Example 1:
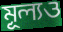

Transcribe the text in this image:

মূল্যও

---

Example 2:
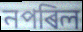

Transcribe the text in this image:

নপৰিল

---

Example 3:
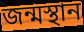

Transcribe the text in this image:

জন্মস্থান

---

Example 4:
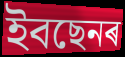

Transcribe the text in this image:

ইবছেনৰ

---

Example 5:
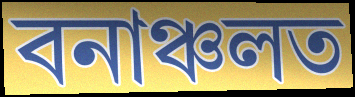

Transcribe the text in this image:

বনাঞ্চলত